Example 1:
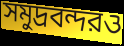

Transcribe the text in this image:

সমুদ্রবন্দরও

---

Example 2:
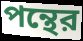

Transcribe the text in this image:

পন্থের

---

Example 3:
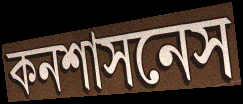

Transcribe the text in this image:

কনশাসনেস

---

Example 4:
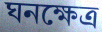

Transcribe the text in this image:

ঘনক্ষেত্র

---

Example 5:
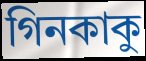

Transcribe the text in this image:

গিনকাকু